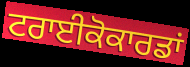
ਟਰਾਈਕੋਕਾਰਡਾਂ